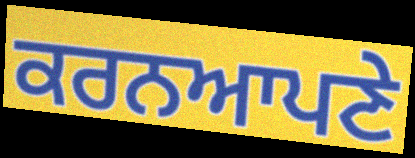
ਕਰਨਆਪਣੇ